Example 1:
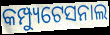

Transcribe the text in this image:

କମ୍ପ୍ୟୁଟେସନାଲ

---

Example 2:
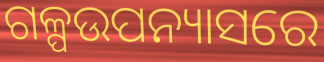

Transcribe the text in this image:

ଗଳ୍ପଉପନ୍ୟାସରେ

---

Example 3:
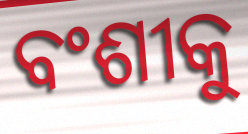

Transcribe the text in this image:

ବଂଶୀକୁ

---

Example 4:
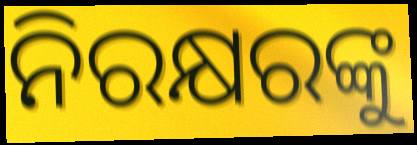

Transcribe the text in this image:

ନିରକ୍ଷରଙ୍କୁ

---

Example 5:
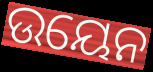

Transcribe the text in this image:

ଉୟେନ